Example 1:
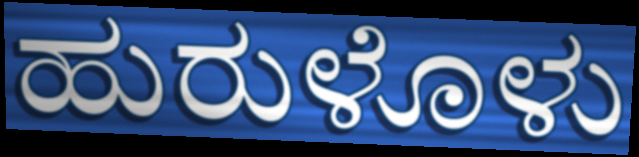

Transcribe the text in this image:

ಹುರುಳೊಳು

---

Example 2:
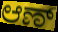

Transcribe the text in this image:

ಆಣ್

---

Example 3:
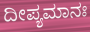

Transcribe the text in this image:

ದೀಪ್ಯಮಾನಃ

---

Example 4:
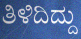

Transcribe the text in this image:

ತಿಳಿದಿದ್ದು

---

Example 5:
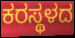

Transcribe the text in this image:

ಕರಸ್ಥಳದ